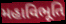
મહાવિભૂતિ